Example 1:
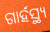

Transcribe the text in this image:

ଗାର୍ହସ୍ଥ୍ୟ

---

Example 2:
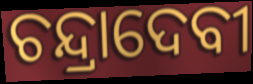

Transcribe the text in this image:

ଚନ୍ଦ୍ରାଦେବୀ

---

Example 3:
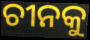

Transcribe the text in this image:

ଚୀନକୁ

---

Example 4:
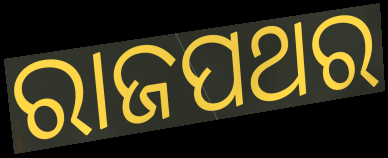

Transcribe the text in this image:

ରାଜପଥର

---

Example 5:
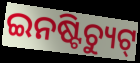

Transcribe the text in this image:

ଇନଷ୍ଟିଚ୍ୟୁଟ୍